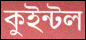
কুইন্টল